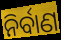
ନିର୍ବାଣ